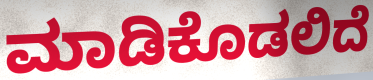
ಮಾಡಿಕೊಡಲಿದೆ